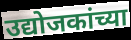
उद्योजकांच्या